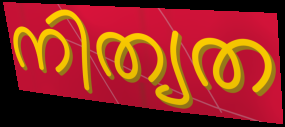
നിത്യത